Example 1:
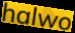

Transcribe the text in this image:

halwo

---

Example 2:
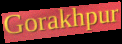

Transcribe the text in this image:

Gorakhpur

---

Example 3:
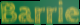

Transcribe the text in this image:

Barrie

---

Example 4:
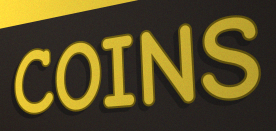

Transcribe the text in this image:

COINS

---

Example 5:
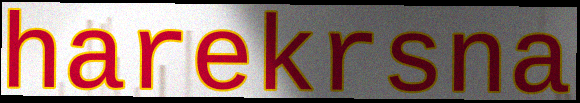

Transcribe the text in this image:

harekrsna